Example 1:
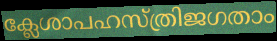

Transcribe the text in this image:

ക്ലേശാപഹസ്ത്രിജഗതാം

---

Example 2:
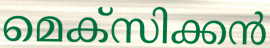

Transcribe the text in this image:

മെക്സിക്കൻ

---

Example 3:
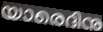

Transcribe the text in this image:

യാരെദിനു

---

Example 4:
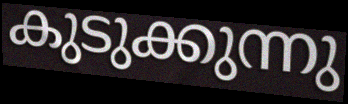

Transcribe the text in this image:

കുടുക്കുന്നു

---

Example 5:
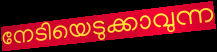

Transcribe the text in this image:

നേടിയെടുക്കാവുന്ന